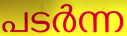
പടർന്ന